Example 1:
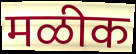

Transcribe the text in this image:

मळीक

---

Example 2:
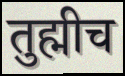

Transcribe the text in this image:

तुह्मीच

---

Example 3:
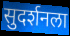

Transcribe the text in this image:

सुदर्शनला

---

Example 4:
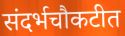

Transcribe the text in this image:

संदर्भचौकटीत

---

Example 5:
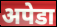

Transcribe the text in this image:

अपेडा